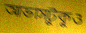
আভাসটুকুও